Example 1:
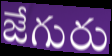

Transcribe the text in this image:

జేగురు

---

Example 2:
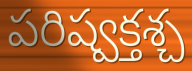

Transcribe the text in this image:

పరిష్వక్తశ్చ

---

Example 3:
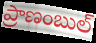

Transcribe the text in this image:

ప్రాణంబుల్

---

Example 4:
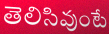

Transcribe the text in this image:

తెలిసివుంటే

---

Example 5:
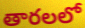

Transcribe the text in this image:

తారలలో